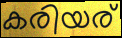
കരിയര്